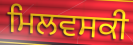
ਮਿਲਵਸਕੀ